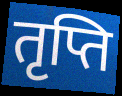
तृप्ति